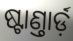
ଷ୍ଟାଣ୍ତାର୍ଡ଼